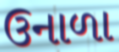
ઉનાળા